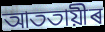
আততায়ীৰ